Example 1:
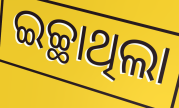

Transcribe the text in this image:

ଇଚ୍ଛାଥିଲା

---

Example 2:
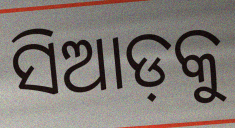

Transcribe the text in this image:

ସିଆଡ଼କୁ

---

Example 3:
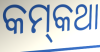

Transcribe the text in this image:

କମ୍‌କଥା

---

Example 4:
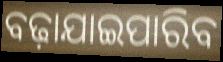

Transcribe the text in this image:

ବଢ଼ାଯାଇପାରିବ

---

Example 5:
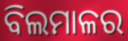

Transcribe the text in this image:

ବିଲମାଳର